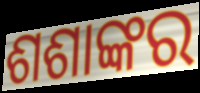
ଶଶାଙ୍କର